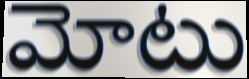
మోటు